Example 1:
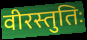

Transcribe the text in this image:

वीरस्तुतिः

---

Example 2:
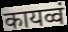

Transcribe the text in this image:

कायव्वं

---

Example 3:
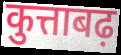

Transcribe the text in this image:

कुत्ताबढ़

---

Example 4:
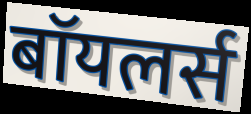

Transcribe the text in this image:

बॉयलर्स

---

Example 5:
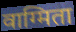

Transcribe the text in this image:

वाग्मिता